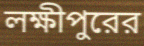
লক্ষীপুরের